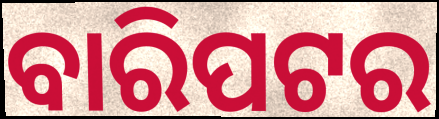
ବାରିପଟର